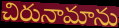
చిరునామాను